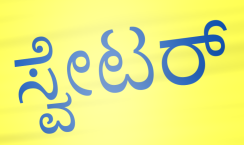
ಸ್ವೇಟರ್